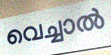
വെച്ചാൽ